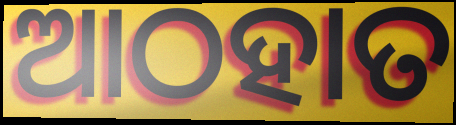
ଆଠହାତ